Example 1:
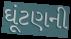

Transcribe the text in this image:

ઘૂંટણની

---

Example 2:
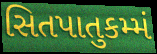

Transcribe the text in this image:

સિતપાતુકમ્મં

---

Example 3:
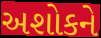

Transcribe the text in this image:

અશોકને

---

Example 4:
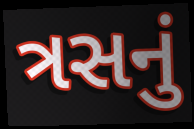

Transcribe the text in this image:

ત્રસનું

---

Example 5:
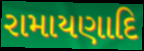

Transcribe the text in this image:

રામાયણાદિ